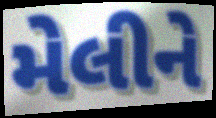
મેલીને